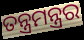
ତନ୍ତ୍ରମନ୍ତ୍ରର